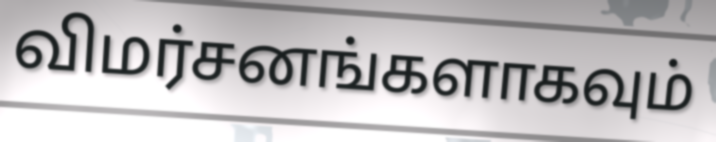
விமர்சனங்களாகவும்